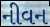
નીવન